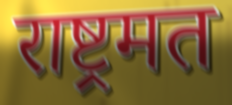
राष्ट्रमत